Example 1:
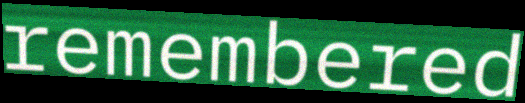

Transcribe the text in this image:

remembered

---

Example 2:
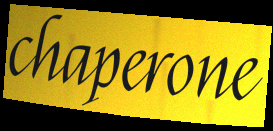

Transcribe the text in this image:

chaperone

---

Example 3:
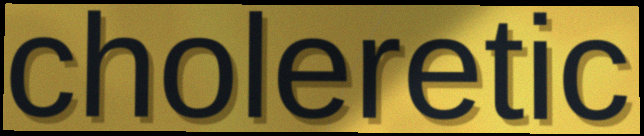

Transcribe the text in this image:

choleretic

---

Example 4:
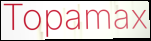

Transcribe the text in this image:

Topamax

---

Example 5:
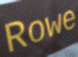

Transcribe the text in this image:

Rowe